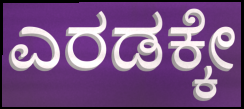
ಎರಡಕ್ಕೇ